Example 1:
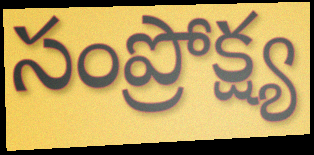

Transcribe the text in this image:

సంప్రోక్ష్య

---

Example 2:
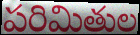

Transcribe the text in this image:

పరిమితుల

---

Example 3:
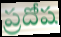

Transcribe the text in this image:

ప్రదోష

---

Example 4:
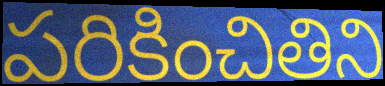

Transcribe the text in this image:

పరికించితిని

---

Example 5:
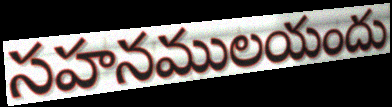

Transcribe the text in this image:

సహనములయందు